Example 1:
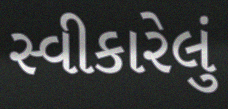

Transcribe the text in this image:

સ્વીકારેલું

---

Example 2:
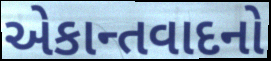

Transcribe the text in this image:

એકાન્તવાદનો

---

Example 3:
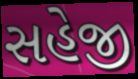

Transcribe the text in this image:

સહેજી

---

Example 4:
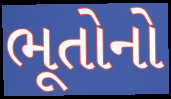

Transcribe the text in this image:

ભૂતોનો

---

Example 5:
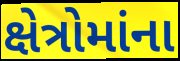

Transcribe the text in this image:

ક્ષેત્રોમાંના